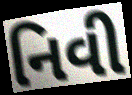
નિવી